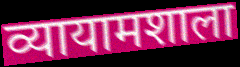
व्यायामशाला